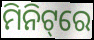
ମିନିଟ୍‌ରେ